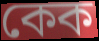
কেক